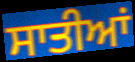
ਸਾਤੀਆਂ